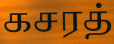
கசரத்